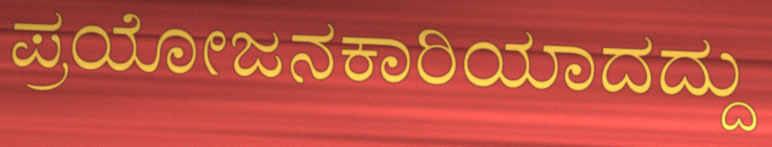
ಪ್ರಯೋಜನಕಾರಿಯಾದದ್ದು